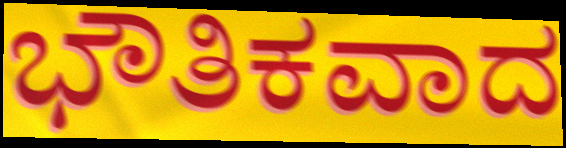
ಭೌತಿಕವಾದ